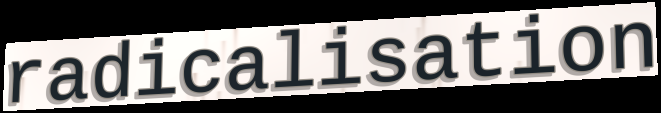
radicalisation